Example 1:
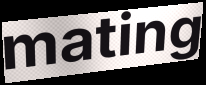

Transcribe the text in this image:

mating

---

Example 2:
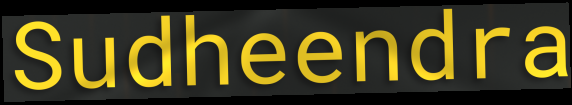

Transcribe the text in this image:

Sudheendra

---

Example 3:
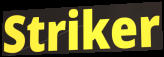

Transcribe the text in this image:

Striker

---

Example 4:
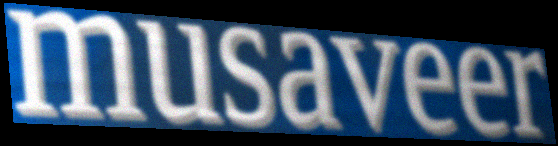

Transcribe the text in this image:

musaveer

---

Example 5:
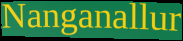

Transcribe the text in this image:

Nanganallur